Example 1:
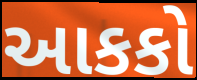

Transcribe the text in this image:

આકકો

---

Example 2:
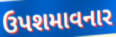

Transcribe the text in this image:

ઉપશમાવનાર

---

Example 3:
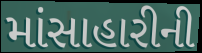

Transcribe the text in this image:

માંસાહારીની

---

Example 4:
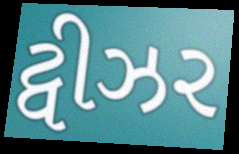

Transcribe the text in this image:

ટ્વીઝર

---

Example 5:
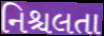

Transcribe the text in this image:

નિશ્ચલતા